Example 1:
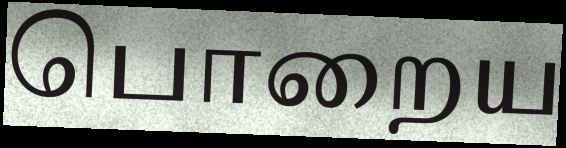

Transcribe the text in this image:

பொறைய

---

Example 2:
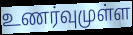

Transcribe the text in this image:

உணர்வுமுள்ள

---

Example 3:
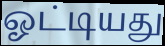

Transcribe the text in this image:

ஓட்டியது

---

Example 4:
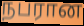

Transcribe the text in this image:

நபரான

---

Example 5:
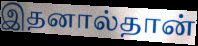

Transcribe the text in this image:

இதனால்தான்